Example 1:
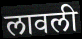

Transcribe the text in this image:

लावली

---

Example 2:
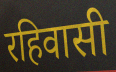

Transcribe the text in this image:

रहिवासी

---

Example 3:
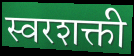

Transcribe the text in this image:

स्वरशक्ती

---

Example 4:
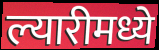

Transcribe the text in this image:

ल्यारीमध्ये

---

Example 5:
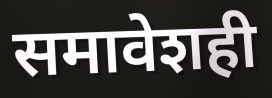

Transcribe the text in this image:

समावेशही